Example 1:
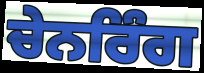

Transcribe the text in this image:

ਚੇਨਰਿੰਗ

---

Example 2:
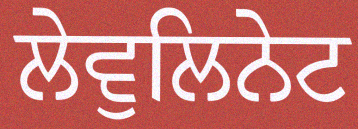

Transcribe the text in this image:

ਲੇਵੁਲਿਨੇਟ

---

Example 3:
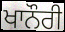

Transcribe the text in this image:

ਖਾਨੌਰੀ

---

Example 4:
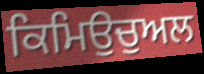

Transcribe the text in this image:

ਕਿਮਿਉਚੁਅਲ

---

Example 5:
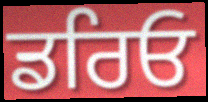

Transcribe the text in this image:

ਡਰਿਓ